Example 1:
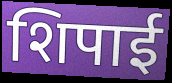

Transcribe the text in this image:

शिपाई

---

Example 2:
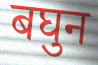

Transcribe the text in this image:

बघुन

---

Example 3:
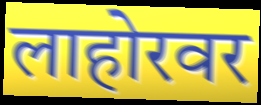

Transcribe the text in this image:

लाहोरवर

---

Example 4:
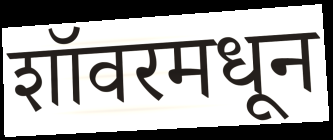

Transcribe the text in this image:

शॉवरमधून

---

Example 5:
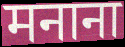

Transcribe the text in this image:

मनाना